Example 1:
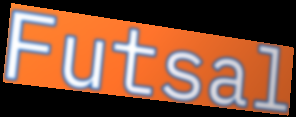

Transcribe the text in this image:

Futsal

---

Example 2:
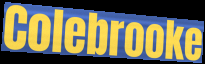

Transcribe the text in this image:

Colebrooke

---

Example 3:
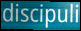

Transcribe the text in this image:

discipuli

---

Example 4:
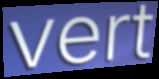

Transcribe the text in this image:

vert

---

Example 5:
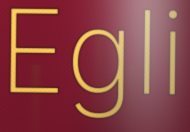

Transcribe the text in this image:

Egli